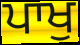
ਪਾਖੁ